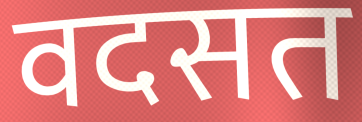
वदसत